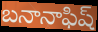
బనానాఫిష్